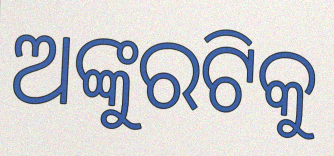
ଅଙ୍କୁରଟିକୁ